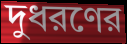
দুধরণের